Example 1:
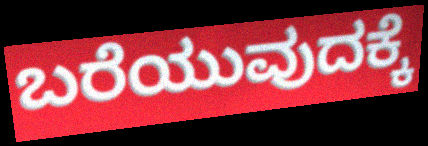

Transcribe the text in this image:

ಬರೆಯುವುದಕ್ಕೆ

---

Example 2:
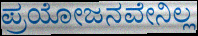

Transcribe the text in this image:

ಪ್ರಯೋಜನವೇನಿಲ್ಲ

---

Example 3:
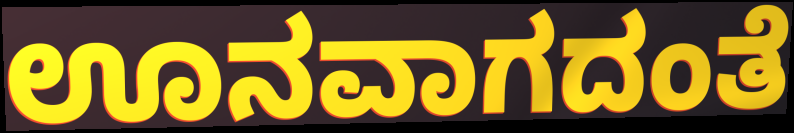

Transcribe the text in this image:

ಊನವಾಗದಂತೆ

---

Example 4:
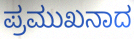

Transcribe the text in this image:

ಪ್ರಮುಖನಾದ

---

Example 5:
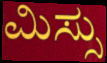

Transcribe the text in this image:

ಮಿಸ್ಸು